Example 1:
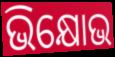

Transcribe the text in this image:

ଭିକ୍ଷୋଭ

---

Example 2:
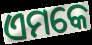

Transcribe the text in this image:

ଏମକେ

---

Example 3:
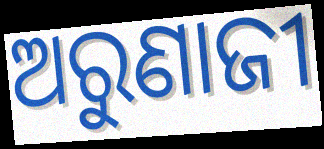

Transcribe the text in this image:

ଅରୁଣାଜୀ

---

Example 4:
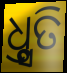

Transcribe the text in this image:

ଧ୍ତ୍ସତି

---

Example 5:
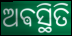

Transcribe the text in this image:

ଅଵସ୍ଥିତି